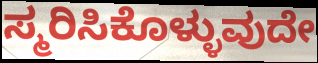
ಸ್ಮರಿಸಿಕೊಳ್ಳುವುದೇ